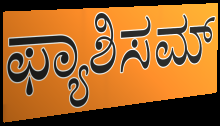
ಫ್ಯಾಶಿಸಮ್